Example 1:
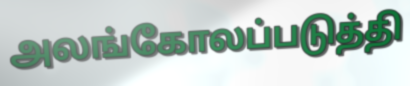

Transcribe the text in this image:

அலங்கோலப்படுத்தி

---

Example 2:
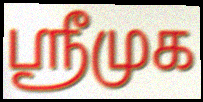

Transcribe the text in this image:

ஸ்ரீமுக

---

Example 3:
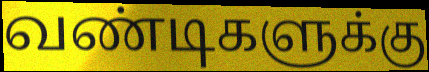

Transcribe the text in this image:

வண்டிகளுக்கு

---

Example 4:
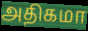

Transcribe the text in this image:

அதிகமா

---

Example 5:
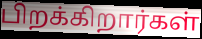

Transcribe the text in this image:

பிறக்கிறார்கள்